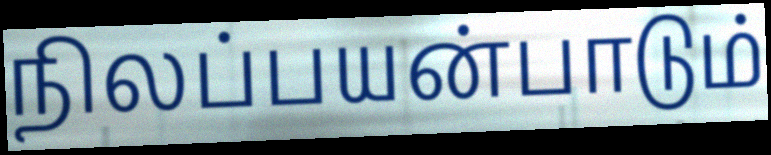
நிலப்பயன்பாடும்